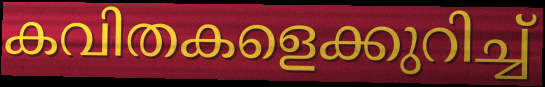
കവിതകളെക്കുറിച്ച്